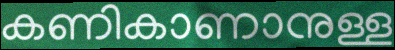
കണികാണാനുള്ള